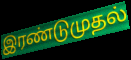
இரண்டுமுதல்